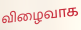
விழைவாக